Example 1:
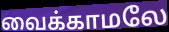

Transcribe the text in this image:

வைக்காமலே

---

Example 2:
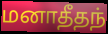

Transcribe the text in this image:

மனாதீதந்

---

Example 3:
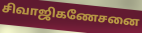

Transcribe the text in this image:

சிவாஜிகணேசனை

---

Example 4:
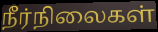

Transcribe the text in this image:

நீர்நிலைகள்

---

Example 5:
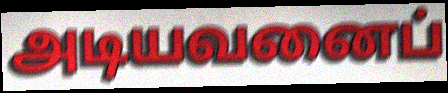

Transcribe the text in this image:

அடியவனைப்